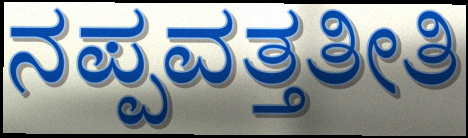
ನಪ್ಪವತ್ತತೀತಿ